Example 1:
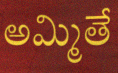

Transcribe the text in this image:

అమ్మితే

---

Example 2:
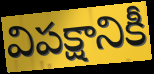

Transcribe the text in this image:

విపక్షానికీ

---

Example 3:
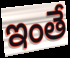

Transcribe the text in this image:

ఇంతే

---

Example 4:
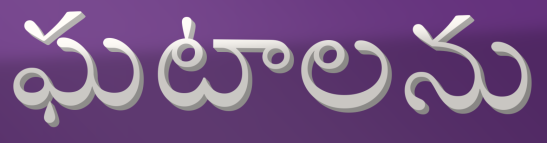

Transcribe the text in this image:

ఘటాలను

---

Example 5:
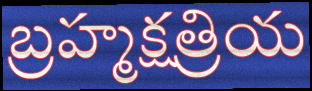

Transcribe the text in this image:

బ్రహ్మక్షత్రియ